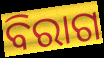
ବିରାଗ